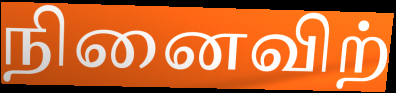
நினைவிற்